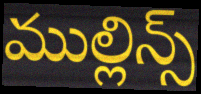
ముల్లిన్స్